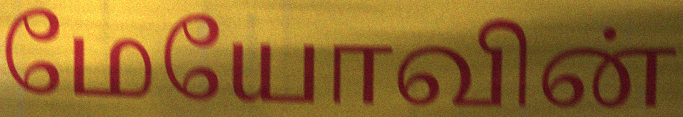
மேயோவின்